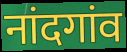
नांदगांव